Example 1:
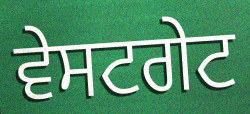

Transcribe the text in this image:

ਵੇਸਟਗੇਟ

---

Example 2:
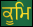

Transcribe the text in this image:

ਕੂਮਿ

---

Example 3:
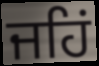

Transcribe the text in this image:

ਜਹਿਂ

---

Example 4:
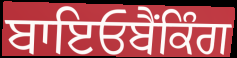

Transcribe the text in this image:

ਬਾਇਓਬੈਂਕਿੰਗ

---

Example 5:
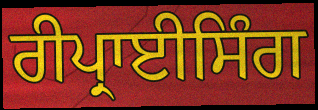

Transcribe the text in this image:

ਰੀਪ੍ਰਾਈਸਿੰਗ